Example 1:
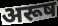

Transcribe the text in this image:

अरूष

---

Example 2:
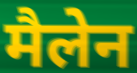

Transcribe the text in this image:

मैलेन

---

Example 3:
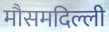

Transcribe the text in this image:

मौसमदिल्ली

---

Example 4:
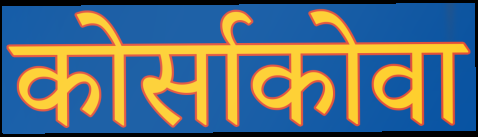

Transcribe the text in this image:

कोर्साकोवा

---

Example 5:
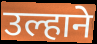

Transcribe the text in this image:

उल्हाने